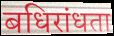
बधिरांधता